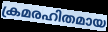
ക്രമരഹിതമായ